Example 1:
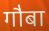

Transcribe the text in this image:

गौबा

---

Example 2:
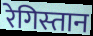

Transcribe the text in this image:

रेगिस्‍तान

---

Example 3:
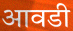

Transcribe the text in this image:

आवडी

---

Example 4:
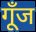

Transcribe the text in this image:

गूँज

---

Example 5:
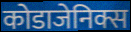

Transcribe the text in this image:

कोडाजेनिक्स